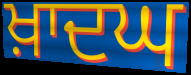
ਖ਼ਾਦਘ